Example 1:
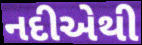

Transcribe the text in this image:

નદીએથી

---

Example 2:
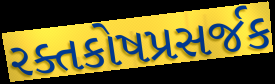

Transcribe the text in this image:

રક્તકોષપ્રસર્જક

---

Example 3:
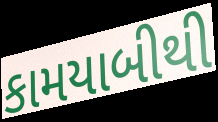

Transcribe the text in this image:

કામયાબીથી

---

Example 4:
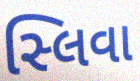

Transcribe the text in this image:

સ્લિવા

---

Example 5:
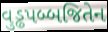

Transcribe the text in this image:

વુડ્ઢપબ્બજિતેન